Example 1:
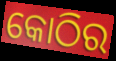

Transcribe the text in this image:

କୋଠିର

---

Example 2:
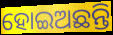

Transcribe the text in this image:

ହୋଇଅଛନ୍ତି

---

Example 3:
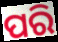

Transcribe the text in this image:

ପରି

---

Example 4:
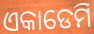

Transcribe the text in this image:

ଏକାଡେମି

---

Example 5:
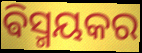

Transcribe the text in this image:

ଵିସ୍ମୟକର